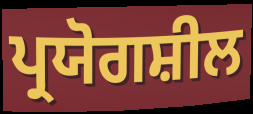
ਪ੍ਰਯੋਗਸ਼ੀਲ